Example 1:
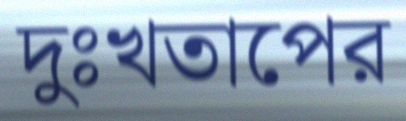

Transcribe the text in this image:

দুঃখতাপের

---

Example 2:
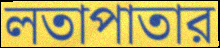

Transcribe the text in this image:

লতাপাতার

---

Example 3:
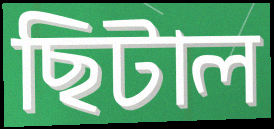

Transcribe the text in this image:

ছিটাল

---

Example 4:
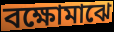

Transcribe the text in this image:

বক্ষোমাঝে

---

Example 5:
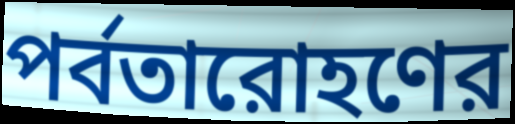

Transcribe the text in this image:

পর্বতারোহণের